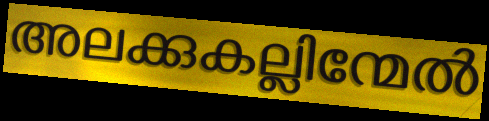
അലക്കുകല്ലിന്മേൽ